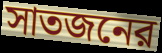
সাতজনের